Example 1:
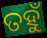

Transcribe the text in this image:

ତହୁଁ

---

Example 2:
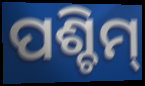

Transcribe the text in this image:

ପଶ୍ଚିମ୍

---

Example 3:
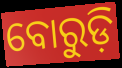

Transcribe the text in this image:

ବୋରୁଡ଼ି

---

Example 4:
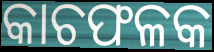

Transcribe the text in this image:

କାଚଫଳକ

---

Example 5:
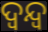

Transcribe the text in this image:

ଦ୍ବନ୍ଦ୍ବ